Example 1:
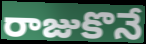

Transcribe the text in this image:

రాజుకొనే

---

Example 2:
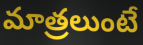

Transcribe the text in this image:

మాత్రలుంటే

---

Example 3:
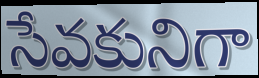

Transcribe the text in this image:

సేవకునిగా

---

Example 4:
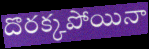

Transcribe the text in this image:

దొరక్కపోయినా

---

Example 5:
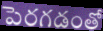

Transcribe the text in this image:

పెరగడంతో